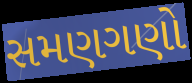
સમણગણો